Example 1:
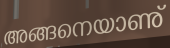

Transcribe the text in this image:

അങ്ങനെയാണു്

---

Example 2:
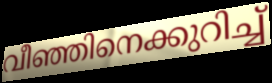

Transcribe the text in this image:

വീഞ്ഞിനെക്കുറിച്ച്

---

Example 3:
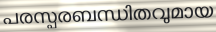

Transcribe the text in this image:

പരസ്പരബന്ധിതവുമായ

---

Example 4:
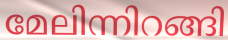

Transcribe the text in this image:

മേലിന്നിറങ്ങി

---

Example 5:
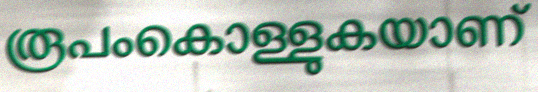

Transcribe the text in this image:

രൂപംകൊള്ളുകയാണ്